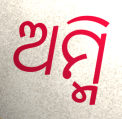
ଅମ୍ମି